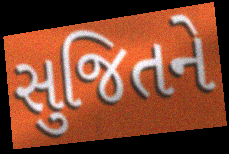
સુજિતને